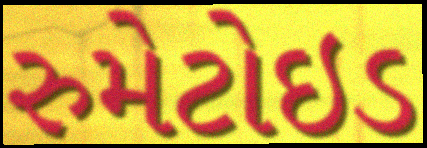
રુમેટોઇડ